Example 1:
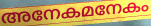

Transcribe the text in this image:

അനേകമനേകം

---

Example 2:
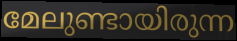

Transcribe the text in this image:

മേലുണ്ടായിരുന്ന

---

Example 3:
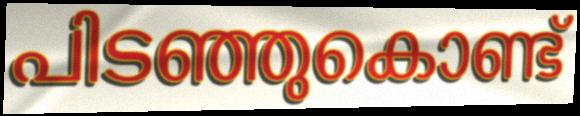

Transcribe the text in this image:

പിടഞ്ഞുകൊണ്ട്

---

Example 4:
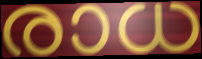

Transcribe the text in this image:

രാധ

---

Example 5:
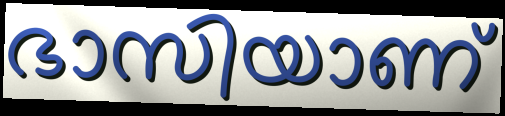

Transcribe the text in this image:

ഭാസിയാണ്